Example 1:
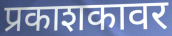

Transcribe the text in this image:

प्रकाशकावर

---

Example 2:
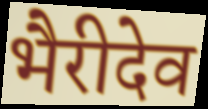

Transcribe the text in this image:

भैरीदेव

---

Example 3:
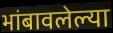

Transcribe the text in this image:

भांबावलेल्या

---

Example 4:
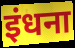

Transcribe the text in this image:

इंधना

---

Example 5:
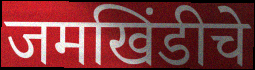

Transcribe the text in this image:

जमखिंडीचे